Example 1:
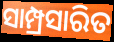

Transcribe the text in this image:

ସାମ୍ପ୍ରସାରିତ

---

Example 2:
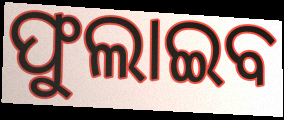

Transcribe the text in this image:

ଫୁଲାଇବ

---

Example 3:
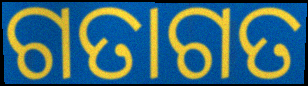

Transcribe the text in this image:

ଗତାଗତ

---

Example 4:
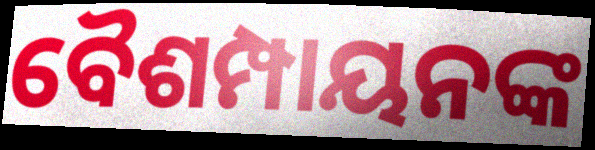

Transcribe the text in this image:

ବୈଶମ୍ପାୟନଙ୍କ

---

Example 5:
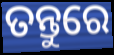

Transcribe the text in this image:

ତନ୍ତୁରେ